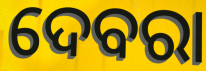
ଦେବରା